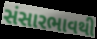
સંસારભાવથી